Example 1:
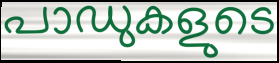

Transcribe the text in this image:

പാഡുകളുടെ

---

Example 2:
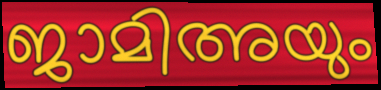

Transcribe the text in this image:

ജാമിഅയും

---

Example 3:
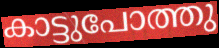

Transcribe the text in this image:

കാട്ടുപോത്തു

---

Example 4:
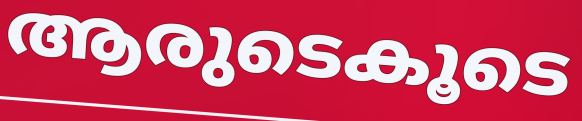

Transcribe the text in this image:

ആരുടെകൂടെ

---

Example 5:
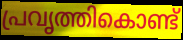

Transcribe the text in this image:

പ്രവൃത്തികൊണ്ട്